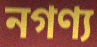
নগণ্য